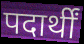
पदार्थीं